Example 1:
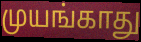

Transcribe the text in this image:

முயங்காது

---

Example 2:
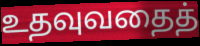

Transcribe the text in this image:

உதவுவதைத்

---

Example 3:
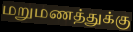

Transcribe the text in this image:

மறுமணத்துக்கு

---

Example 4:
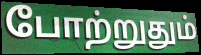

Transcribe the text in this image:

போற்றுதும்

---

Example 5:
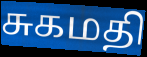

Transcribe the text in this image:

சுகமதி